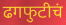
ढगफुटीचं